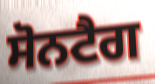
ਸੋਨਟੈਗ